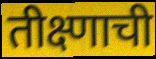
तीक्ष्णाची